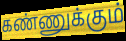
கண்ணுக்கும்